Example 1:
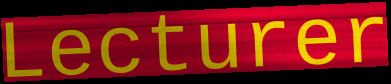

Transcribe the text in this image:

Lecturer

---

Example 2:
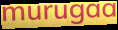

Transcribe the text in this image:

murugaa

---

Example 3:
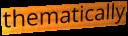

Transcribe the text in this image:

thematically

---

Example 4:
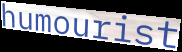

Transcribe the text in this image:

humourist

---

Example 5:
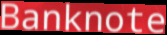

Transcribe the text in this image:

Banknote